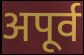
अपूर्व